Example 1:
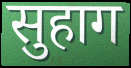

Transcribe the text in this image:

सुहाग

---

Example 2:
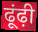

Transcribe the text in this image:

ढूंढ़ी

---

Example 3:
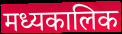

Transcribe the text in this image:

मध्यकालिक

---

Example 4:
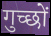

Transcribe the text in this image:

गुच्छों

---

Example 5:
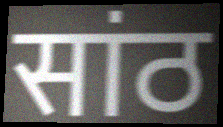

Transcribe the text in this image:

सांठ